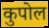
कुपोल